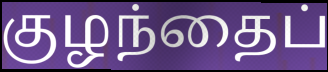
குழந்தைப்